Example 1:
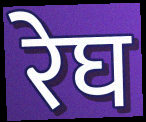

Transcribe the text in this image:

रेघ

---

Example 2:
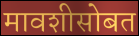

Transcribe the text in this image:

मावशीसोबत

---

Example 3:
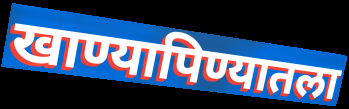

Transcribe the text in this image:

खाण्यापिण्यातला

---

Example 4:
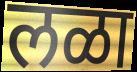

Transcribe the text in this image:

लळा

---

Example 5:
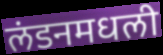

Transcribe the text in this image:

लंडनमधली